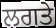
ਲਗਤੇ